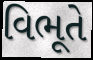
વિભૂતે